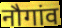
नौगांव